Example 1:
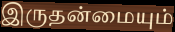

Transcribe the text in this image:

இருதன்மையும்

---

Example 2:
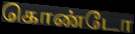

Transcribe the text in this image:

கொண்டோ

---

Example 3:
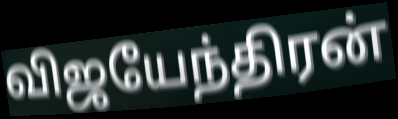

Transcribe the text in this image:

விஜயேந்திரன்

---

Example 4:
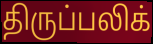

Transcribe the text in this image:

திருப்பலிக்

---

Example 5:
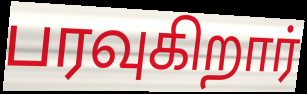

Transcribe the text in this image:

பரவுகிறார்